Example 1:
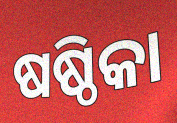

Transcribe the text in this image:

ଷଷ୍ଠିକା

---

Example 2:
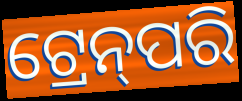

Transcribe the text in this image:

ଟ୍ରେନ୍‌ପରି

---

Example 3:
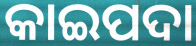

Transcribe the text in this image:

କାଇପଦା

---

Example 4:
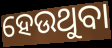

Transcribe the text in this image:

ହେଉଥୁବା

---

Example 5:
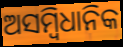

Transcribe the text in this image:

ଅସମ୍ବିଧାନିକ